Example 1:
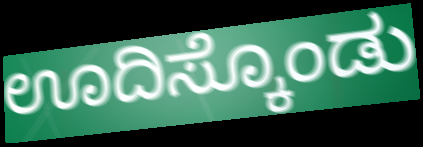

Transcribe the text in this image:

ಊದಿಸ್ಕೊಂಡು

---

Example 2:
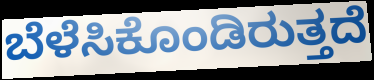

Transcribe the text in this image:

ಬೆಳೆಸಿಕೊಂಡಿರುತ್ತದೆ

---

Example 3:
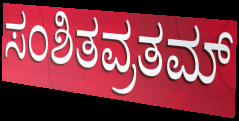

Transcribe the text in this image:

ಸಂಶಿತವ್ರತಮ್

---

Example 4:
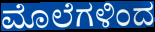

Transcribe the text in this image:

ಮೊಲೆಗಳಿಂದ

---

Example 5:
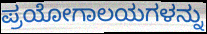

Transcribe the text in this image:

ಪ್ರಯೋಗಾಲಯಗಳನ್ನು